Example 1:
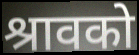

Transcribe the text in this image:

श्रावको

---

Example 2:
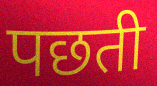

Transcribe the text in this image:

पछती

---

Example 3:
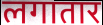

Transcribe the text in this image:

लगातार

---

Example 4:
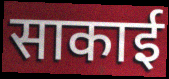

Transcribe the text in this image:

साकाई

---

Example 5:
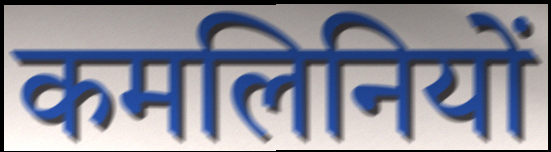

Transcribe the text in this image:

कमलिनियों